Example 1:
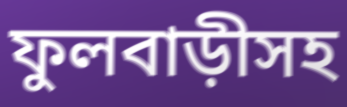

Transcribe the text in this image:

ফুলবাড়ীসহ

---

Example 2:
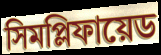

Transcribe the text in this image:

সিমপ্লিফায়েড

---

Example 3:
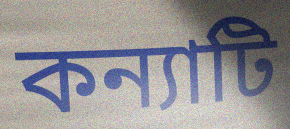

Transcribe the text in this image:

কন্যাটি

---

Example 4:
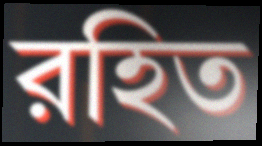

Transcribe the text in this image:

রহিত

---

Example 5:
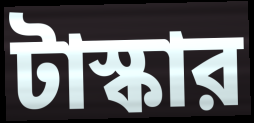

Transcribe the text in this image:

টাস্কার